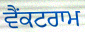
ਵੈਂਕਟਰਾਮ